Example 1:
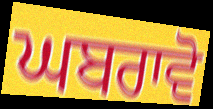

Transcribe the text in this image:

ਘਬਰਾਵੋ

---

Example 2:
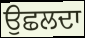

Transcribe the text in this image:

ਉਛਲਦਾ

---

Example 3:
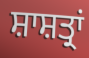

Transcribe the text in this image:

ਸ਼ਾਸ਼ਤ੍ਰਾਂ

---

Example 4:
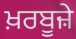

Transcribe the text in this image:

ਖ਼ਰਬੂਜ਼ੇ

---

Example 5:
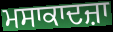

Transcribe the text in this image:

ਮਸਾਕਾਦਜ਼ਾ